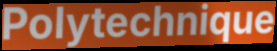
Polytechnique